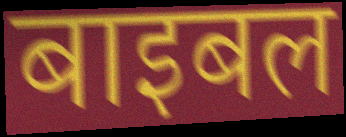
बाइबल